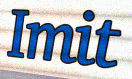
Imit